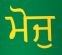
ਮੋਜੁ